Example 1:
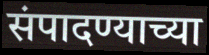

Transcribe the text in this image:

संपादण्याच्या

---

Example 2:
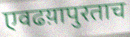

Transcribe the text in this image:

एवढय़ापुरताच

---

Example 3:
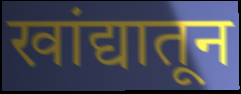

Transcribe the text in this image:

खांद्यातून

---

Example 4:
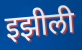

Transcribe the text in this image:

इझीली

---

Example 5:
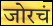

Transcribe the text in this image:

जोरचं